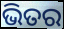
ଭିତର